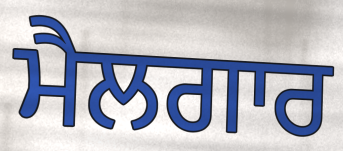
ਮੈਲਗਾਰ